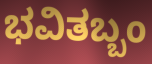
ಭವಿತಬ್ಬಂ